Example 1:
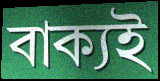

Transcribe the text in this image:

বাক্যই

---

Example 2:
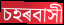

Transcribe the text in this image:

চহৰবাসী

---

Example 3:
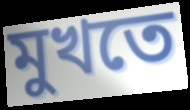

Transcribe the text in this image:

মুখতে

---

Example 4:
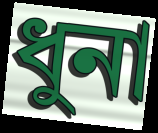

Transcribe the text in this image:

ধুনা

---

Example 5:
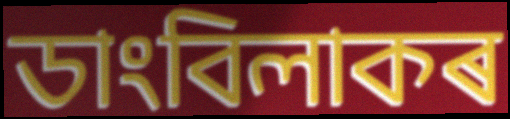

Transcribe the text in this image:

ডাংবিলাকৰ